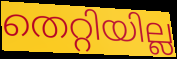
തെറ്റിയില്ല